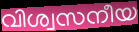
വിശ്വസനീയ